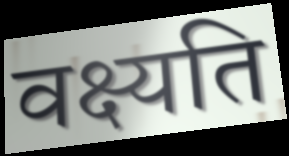
वक्ष्यति